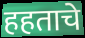
हहताचे